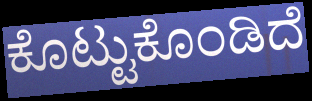
ಕೊಟ್ಟುಕೊಂಡಿದೆ